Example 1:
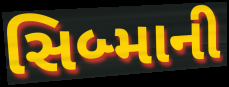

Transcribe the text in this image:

સિબ્માની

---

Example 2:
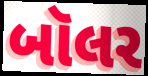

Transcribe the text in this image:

બૉલર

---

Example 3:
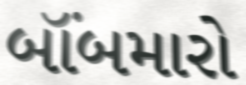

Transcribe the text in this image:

બૉંબમારો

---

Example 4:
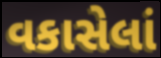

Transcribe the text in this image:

વકાસેલાં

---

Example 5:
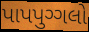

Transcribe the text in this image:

પાપપુગ્ગલો